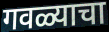
गवळ्याचा